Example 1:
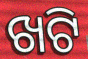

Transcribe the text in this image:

ଖଟି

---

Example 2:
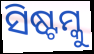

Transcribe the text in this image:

ସିଷ୍ଟମ୍କୁ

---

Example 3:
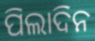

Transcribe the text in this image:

ପିଲାଦିନ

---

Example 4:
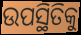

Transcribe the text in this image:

ଉପସ୍ଥିତିକୁ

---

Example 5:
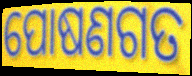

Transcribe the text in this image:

ପୋଷଣଗତ